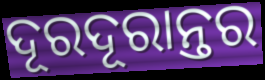
ଦୂରଦୂରାନ୍ତର